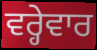
ਵਰ੍ਹੇਵਾਰ